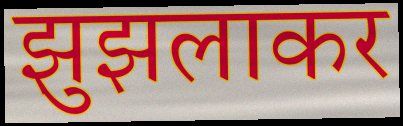
झुझलाकर